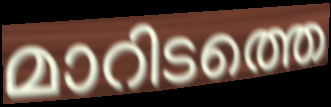
മാറിടത്തെ